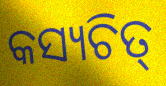
କସ୍ୟଚିତ୍